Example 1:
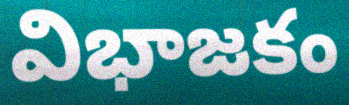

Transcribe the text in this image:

విభాజకం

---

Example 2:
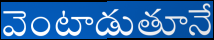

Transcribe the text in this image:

వెంటాడుతూనే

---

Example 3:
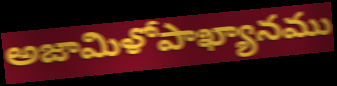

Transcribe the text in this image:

అజామిళోపాఖ్యానము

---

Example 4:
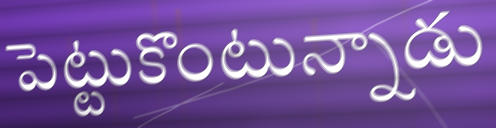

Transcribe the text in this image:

పెట్టుకొంటున్నాడు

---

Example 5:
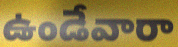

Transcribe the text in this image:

ఉండేవారా